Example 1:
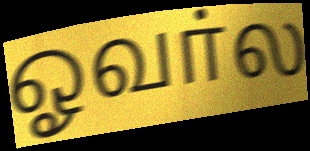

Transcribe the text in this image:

ஓவர்ல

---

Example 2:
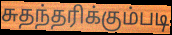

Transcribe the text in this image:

சுதந்தரிக்கும்படி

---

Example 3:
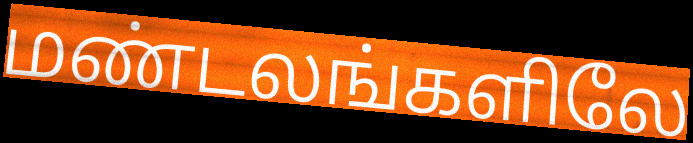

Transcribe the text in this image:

மண்டலங்களிலே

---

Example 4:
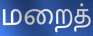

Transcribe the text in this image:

மறைத்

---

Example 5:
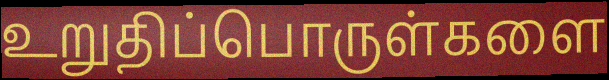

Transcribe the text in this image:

உறுதிப்பொருள்களை